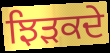
ਝਿੜਕਦੇ